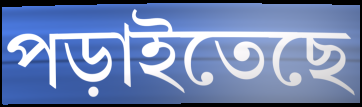
পড়াইতেছে